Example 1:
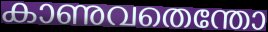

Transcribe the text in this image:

കാണുവതെന്തോ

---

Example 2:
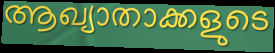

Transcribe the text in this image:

ആഖ്യാതാക്കളുടെ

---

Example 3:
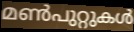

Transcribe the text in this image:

മൺപുറ്റുകൾ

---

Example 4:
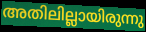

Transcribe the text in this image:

അതിലില്ലായിരുന്നു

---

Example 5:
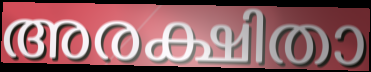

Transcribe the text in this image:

അരക്ഷിതാ